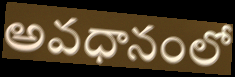
అవధానంలో